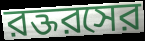
রক্তরসের